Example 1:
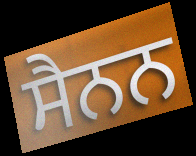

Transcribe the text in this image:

ਸੈਨਨ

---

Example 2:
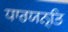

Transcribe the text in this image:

ਧਾਰਯਨ੍ਤਿ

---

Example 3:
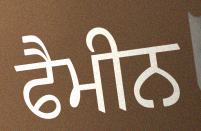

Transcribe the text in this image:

ਫੈਮੀਨ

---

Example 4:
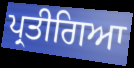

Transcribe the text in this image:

ਪ੍ਰਤੀਗਿਆ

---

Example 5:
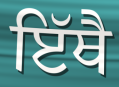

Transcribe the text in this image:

ਇੱਥੈ